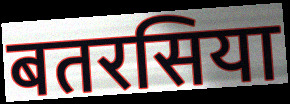
बतरसिया